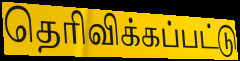
தெரிவிக்கப்பட்டு